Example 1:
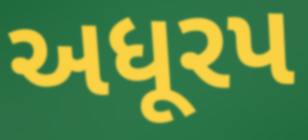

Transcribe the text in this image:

અધૂરપ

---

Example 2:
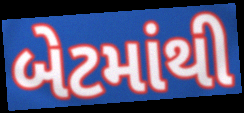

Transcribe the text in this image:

બેટમાંથી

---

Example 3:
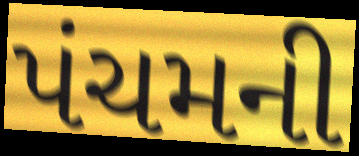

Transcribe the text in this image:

પંચમની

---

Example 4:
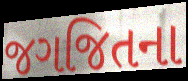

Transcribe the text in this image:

જગજિતના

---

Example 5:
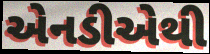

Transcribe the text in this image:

એનડીએથી